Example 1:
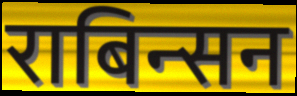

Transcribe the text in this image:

राबिन्सन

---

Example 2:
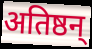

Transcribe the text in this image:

अतिष्ठन्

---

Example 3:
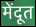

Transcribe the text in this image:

मेंदूत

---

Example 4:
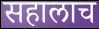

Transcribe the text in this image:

सहालाच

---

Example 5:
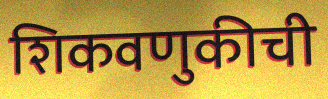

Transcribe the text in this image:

शिकवणुकीची